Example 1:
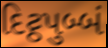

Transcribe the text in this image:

દિટ્ઠપુબ્બં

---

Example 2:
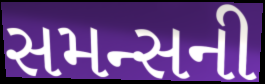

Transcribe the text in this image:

સમન્સની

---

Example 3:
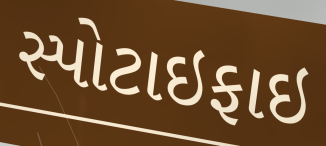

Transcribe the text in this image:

સ્પોટાઇફાઇ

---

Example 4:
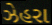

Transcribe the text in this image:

ઝેહરા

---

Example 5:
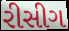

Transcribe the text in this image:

રીસીગ